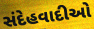
સંદેહવાદીઓ